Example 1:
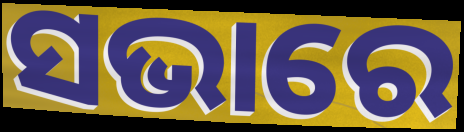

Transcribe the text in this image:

ସଭାରେ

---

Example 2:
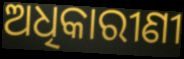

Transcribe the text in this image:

ଅଧିକାରୀଣୀ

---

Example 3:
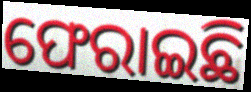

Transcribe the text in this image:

ଫେରାଇଛି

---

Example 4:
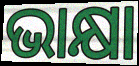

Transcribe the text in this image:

ଭାକ୍ଷା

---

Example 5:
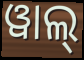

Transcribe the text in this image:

ୱାଲ୍